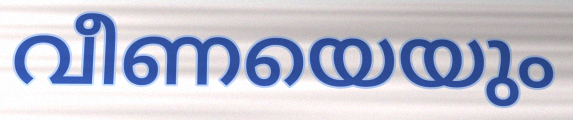
വീണയെയും